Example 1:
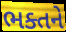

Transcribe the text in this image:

ભક્તને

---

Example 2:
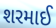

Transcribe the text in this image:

શરમાઈ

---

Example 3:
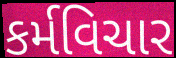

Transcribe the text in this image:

કર્મવિચાર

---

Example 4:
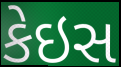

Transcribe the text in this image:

કેઇસ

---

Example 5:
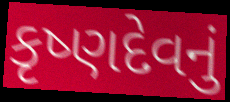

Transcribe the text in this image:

કૃષ્ણદેવનું